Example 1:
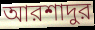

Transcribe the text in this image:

আরশাদুর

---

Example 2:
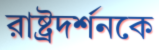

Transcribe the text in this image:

রাষ্ট্রদর্শনকে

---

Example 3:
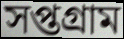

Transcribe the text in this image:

সপ্তগ্রাম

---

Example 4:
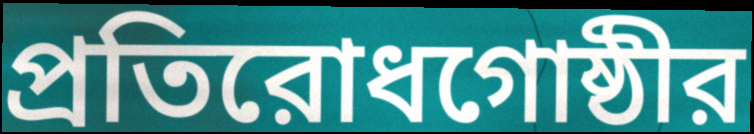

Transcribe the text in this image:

প্রতিরোধগোষ্ঠীর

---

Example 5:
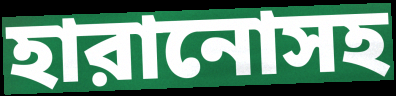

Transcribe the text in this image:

হারানোসহ